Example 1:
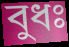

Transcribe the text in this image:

বুধঃ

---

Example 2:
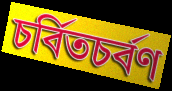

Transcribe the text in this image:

চর্বিতচর্বণ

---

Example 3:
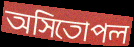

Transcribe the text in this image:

অসিতোপল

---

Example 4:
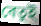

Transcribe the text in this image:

বেতুই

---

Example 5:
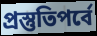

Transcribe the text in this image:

প্রস্তুতিপর্বে